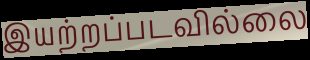
இயற்றப்படவில்லை